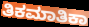
ತಿಕಮಾತಿಕಾ